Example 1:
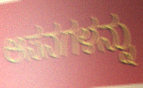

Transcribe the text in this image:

ಆಸನಗಳನ್ನು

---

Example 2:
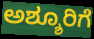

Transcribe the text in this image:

ಅಶ್ಶೂರಿಗೆ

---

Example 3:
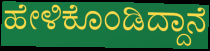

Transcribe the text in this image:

ಹೇಳಿಕೊಂಡಿದ್ದಾನೆ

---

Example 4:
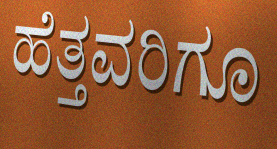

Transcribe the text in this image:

ಹೆತ್ತವರಿಗೂ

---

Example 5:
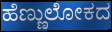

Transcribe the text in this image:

ಹೆಣ್ಣುಲೋಕದ